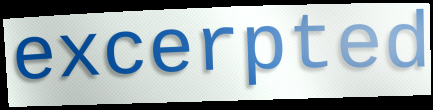
excerpted